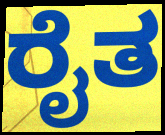
ರೈತ